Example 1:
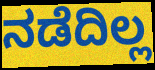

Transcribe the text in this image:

ನಡೆದಿಲ್ಲ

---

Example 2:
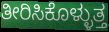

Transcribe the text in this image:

ತೀರಿಸಿಕೊಳ್ಳುತ್ತ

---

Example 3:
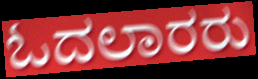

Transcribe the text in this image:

ಓದಲಾರರು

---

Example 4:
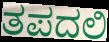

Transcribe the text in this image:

ತಪದಲಿ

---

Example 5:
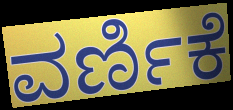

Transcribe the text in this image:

ವರ್ಣಿಕೆ